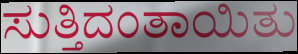
ಸುತ್ತಿದಂತಾಯಿತು